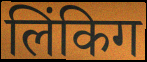
लिंकिग